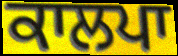
ਕਾਲਪਾ